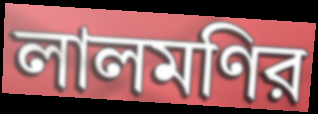
লালমণির